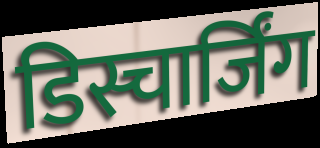
डिस्चार्जिंग